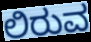
ಲಿರುವ